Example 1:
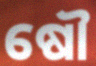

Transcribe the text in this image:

ଷୌ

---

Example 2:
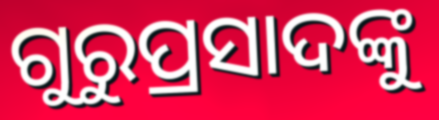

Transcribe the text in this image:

ଗୁରୁପ୍ରସାଦଙ୍କୁ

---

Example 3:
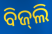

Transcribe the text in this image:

ବିଜ୍‍ଲି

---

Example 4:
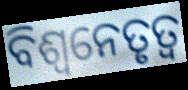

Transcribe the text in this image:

ବିଶ୍ୱନେତୃତ୍ୱ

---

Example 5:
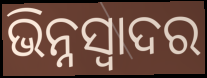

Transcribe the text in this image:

ଭିନ୍ନସ୍ବାଦର